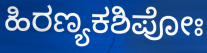
ಹಿರಣ್ಯಕಶಿಪೋಃ